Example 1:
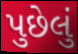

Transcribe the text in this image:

પુછેલું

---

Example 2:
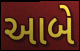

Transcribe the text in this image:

આબે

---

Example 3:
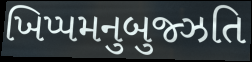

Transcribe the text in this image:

ખિપ્પમનુબુજ્ઝતિ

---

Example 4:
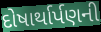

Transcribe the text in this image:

દોષાર્થાર્પણની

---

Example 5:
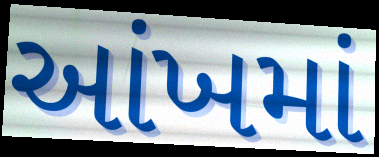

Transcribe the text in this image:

આંખમાં